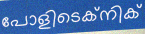
പോളിടെക്നിക്